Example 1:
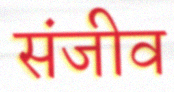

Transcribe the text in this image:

संजीव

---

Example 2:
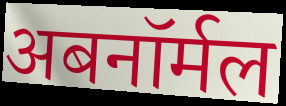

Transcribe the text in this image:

अबनॉर्मल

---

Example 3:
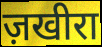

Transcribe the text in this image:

ज़खीरा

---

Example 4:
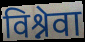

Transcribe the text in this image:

विश्नेवा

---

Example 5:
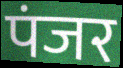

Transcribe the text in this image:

पंजर